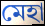
মেহা